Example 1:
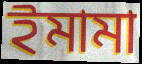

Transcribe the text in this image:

ইমামা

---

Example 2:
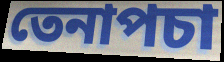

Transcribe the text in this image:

তেনাপচা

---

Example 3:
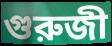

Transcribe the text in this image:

গুরুজী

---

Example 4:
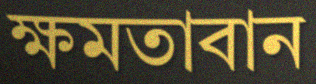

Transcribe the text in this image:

ক্ষমতাবান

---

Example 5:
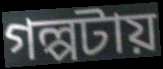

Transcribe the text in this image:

গল্পটায়